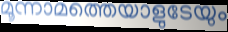
മൂന്നാമത്തെയാളുടേയും